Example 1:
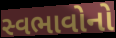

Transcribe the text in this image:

સ્વભાવોનો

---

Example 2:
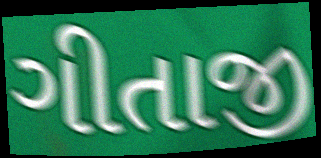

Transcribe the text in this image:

ગીતાજી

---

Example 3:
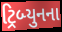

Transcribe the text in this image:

ટ્રિબ્યુનના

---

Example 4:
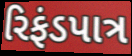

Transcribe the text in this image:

રિફંડપાત્ર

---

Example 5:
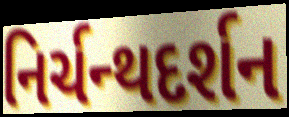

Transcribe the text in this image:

નિર્ચન્થદર્શન